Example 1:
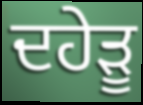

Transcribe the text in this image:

ਦਹੇੜੂ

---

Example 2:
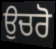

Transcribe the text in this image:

ਉਚਰੋ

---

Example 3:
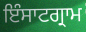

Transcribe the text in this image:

ਇੰਸਾਟਗ੍ਰਾਮ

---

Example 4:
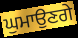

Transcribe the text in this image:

ਘੁਮਾਉਣਗੇ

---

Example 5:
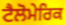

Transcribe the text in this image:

ਟੈਲੋਮੇਰਿਕ